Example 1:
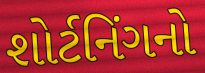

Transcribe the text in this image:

શોર્ટનિંગનો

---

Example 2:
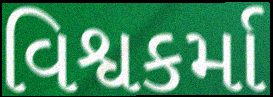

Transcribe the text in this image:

વિશ્વકર્મા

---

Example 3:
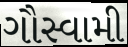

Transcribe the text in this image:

ગૌસ્વામી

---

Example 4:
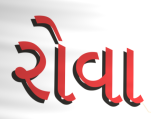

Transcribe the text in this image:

રોવા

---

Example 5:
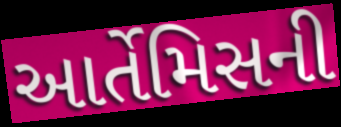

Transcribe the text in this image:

આર્તેમિસની